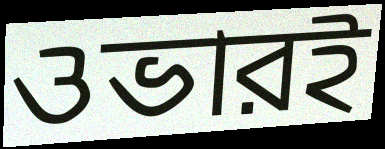
ওভারই